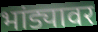
भांड्यावर